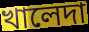
খালেদা